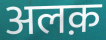
अलक़